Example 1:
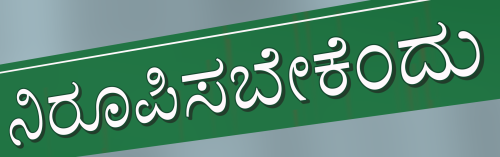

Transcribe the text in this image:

ನಿರೂಪಿಸಬೇಕೆಂದು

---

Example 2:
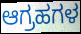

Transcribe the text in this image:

ಆಗ್ರಹಗಳ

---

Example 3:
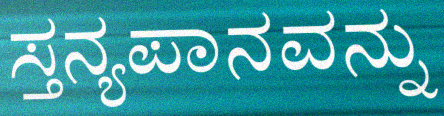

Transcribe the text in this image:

ಸ್ತನ್ಯಪಾನವನ್ನು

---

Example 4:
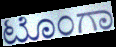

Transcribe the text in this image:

ಟೊಂಗಾ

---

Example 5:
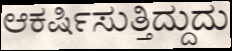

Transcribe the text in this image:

ಆಕರ್ಷಿಸುತ್ತಿದ್ದುದು